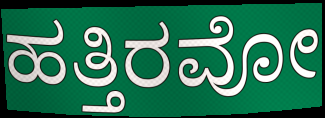
ಹತ್ತಿರವೋ